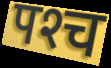
पश्च